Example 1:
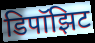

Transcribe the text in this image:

डिपॉझिट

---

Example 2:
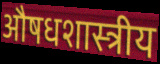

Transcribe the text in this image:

औषधशास्त्रीय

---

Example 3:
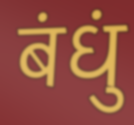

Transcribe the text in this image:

बंधुं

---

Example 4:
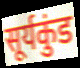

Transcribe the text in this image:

सूर्यकुंड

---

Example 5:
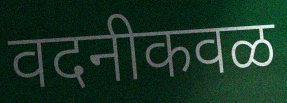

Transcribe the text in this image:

वदनीकवळ